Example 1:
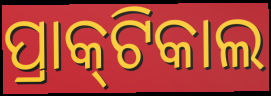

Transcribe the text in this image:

ପ୍ରାକ୍‌ଟିକାଲ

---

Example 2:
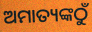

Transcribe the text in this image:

ଅମାତ୍ୟଙ୍କଠୁଁ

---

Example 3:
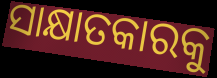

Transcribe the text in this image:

ସାକ୍ଷାତକାରକୁ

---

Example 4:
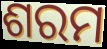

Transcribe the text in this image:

ଶରମ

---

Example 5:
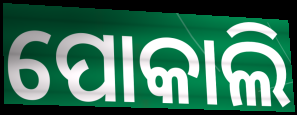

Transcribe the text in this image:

ପୋକାଲି